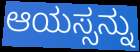
ಆಯಸ್ಸನ್ನು